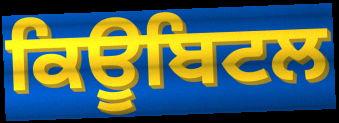
ਕਿਊਬਿਟਲ